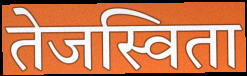
तेजस्विता